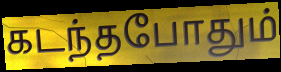
கடந்தபோதும்